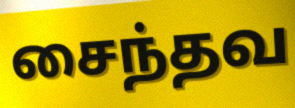
சைந்தவ